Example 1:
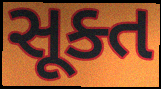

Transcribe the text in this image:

સૂક્ત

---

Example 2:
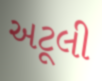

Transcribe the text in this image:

અટૂલી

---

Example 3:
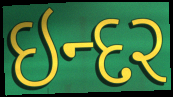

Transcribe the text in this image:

ઇન્દર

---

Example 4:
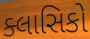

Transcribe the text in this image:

ક્લાસિકો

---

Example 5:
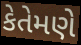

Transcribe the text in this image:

કેતેમણે